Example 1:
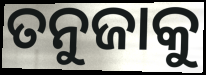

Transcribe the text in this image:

ତନୁଜାକୁ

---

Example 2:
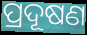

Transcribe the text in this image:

ପ୍ରଦୂଷଣ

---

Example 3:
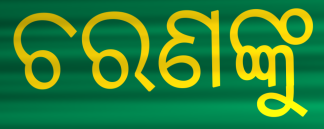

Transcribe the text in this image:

ଚରଣଙ୍କୁ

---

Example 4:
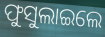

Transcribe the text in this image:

ଫୁସୁଲାଇଲେ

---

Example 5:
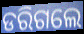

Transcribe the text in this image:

ଡରିଗଲେ